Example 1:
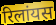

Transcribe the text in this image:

रिलांयस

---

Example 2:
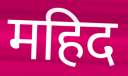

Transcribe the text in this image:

महिद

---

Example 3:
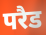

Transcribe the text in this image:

परैड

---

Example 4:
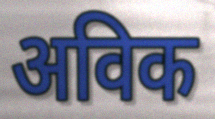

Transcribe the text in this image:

अविक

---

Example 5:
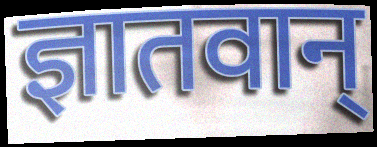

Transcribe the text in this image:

ज्ञातवान्